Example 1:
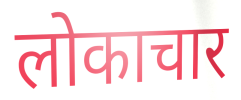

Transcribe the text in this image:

लोकाचार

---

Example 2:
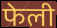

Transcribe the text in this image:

फेली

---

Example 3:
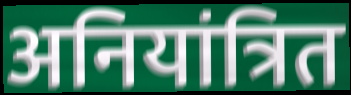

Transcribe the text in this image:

अनियांत्रित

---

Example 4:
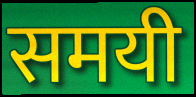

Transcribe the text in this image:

समयी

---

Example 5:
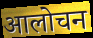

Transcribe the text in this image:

आलोचन